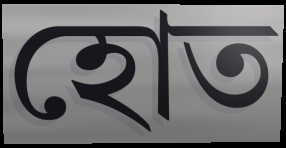
হোত